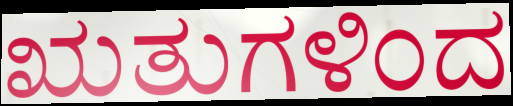
ಋತುಗಳಿಂದ